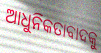
ଆଧୁନିକତାବାଦକୁ